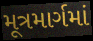
મૂત્રમાર્ગમાં